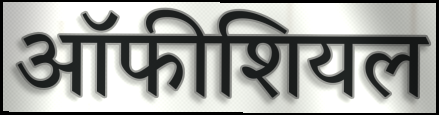
ऑफीशियल